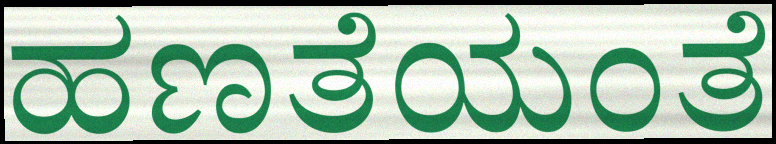
ಹಣತೆಯಂತೆ